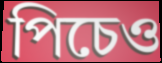
পিচেও